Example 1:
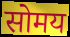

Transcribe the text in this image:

सोमय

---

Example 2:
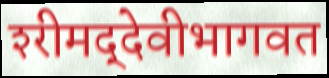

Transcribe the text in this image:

श्रीमद्‌देवीभागवत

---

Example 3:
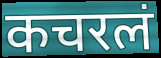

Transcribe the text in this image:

कचरलं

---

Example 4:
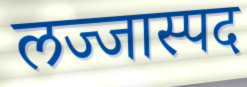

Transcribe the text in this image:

लज्जास्पद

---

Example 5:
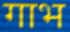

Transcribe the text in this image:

गाभ